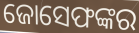
ଜୋସେଫଙ୍କର